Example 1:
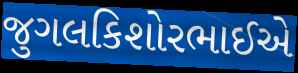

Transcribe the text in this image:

જુગલકિશોરભાઈએ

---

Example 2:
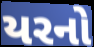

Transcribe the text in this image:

યરનો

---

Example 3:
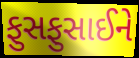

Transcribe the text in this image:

ફુસફુસાઈને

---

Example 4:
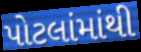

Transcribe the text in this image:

પોટલાંમાંથી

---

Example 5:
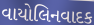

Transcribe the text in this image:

વાયોલિનવાદક